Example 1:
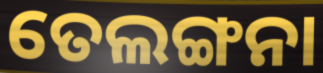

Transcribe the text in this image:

ତେଲଙ୍ଗନା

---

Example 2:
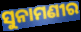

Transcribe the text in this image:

ସୁନାମଣୀର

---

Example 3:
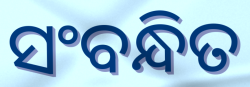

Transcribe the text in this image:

ସଂବନ୍ଧିତ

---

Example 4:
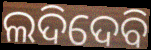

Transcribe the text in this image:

ଲଦିଦେବି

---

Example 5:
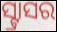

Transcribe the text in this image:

ସ୍ଟ୍ରାସର